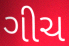
ગીચ